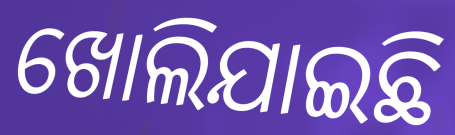
ଖୋଲିଯାଇଛି